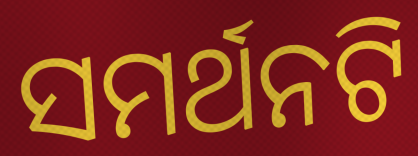
ସମର୍ଥନଟି